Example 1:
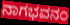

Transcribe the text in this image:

ನಾಗಭವನಂ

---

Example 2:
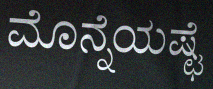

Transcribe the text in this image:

ಮೊನ್ನೆಯಷ್ಟೆ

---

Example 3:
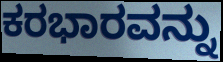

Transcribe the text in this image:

ಕರಭಾರವನ್ನು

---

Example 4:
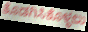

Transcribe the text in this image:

ತೊಡಗಿಸಿಕೊಳ್ಳಲು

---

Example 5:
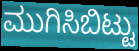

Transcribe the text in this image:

ಮುಗಿಸಿಬಿಟ್ಟು